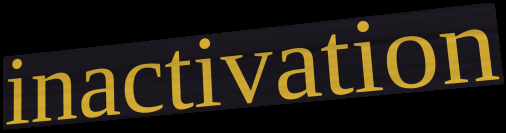
inactivation